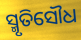
ସ୍ମୃତିସୌଧ